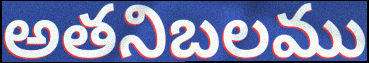
అతనిబలము